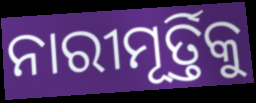
ନାରୀମୂର୍ତ୍ତିକୁ